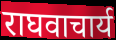
राघवाचार्य